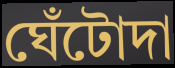
ঘেঁটোদা